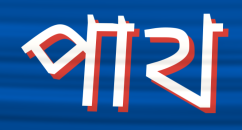
পাথ